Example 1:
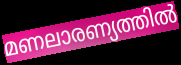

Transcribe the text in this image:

മണലാരണ്യത്തിൽ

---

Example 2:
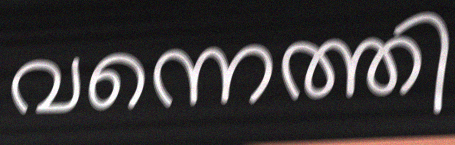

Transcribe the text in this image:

വന്നെത്തി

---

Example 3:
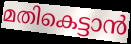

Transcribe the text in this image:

മതികെട്ടാൻ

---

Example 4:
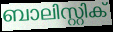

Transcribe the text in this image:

ബാലിസ്റ്റിക്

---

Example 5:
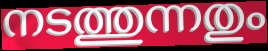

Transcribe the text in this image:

നടത്തുന്നതും